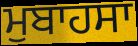
ਮੁਬਾਹਸਾ